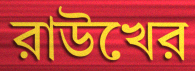
রাউখের